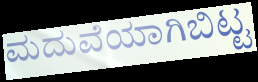
ಮದುವೆಯಾಗಿಬಿಟ್ಟ